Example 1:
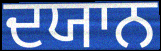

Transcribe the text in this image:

ਦਯਾਨ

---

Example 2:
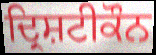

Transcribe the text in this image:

ਦ੍ਰਿਸ਼ਟੀਕੌਨ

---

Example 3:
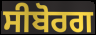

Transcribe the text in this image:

ਸੀਬੋਰਗ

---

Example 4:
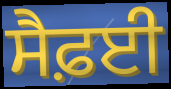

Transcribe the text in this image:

ਸੈਫ਼ਈ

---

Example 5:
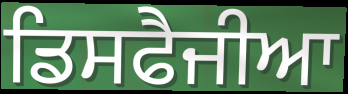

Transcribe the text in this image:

ਡਿਸਫੈਜੀਆ